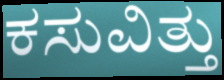
ಕಸುವಿತ್ತು